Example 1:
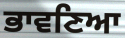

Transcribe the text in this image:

ਭਾਵਣਿਆ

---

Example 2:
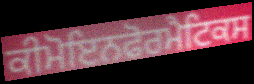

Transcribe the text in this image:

ਕੀਮੋਇਨਫੋਰਮੈਟਿਕਸ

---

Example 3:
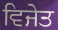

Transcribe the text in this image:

ਵਿਜੇਤ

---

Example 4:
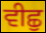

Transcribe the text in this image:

ਵੀਛੁ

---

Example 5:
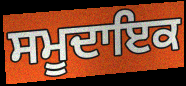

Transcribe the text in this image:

ਸਮੂਦਾਇਕ